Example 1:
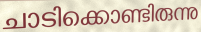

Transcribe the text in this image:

ചാടിക്കൊണ്ടിരുന്നു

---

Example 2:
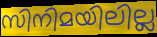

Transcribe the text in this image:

സിനിമയിലില്ല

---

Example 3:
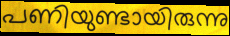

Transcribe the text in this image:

പണിയുണ്ടായിരുന്നു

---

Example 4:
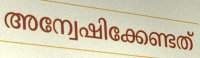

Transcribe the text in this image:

അന്വേഷിക്കേണ്ടത്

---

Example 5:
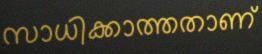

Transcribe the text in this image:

സാധിക്കാത്തതാണ്